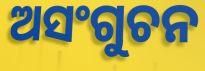
ଅସଂଗୁଚନ